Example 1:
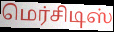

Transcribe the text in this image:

மெர்சிடிஸ்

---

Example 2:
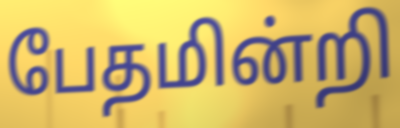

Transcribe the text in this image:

பேதமின்றி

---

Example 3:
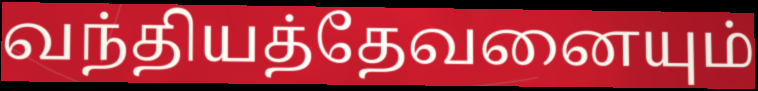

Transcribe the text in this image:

வந்தியத்தேவனையும்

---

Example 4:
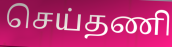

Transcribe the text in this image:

செய்தணி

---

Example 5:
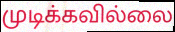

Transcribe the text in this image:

முடிக்கவில்லை